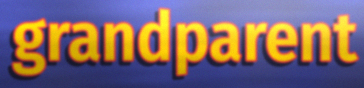
grandparent